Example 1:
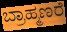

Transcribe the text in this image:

ಬ್ರಾಹ್ಮಣರೆ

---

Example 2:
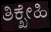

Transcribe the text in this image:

ತಿಕ್ಖೇಹಿ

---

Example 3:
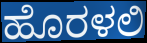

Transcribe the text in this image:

ಹೊರಳಲಿ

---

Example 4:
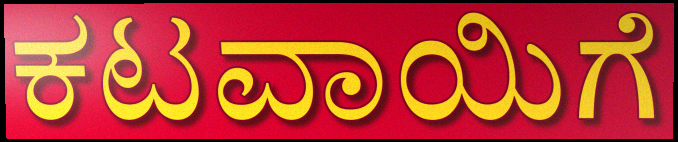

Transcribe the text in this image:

ಕಟವಾಯಿಗೆ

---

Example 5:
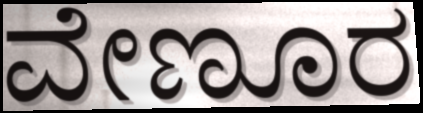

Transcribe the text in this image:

ವೇಣೂರ